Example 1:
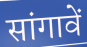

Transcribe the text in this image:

सांगावें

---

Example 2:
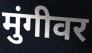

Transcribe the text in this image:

मुंगीवर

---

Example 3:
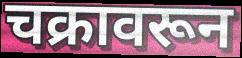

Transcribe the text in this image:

चक्रावरून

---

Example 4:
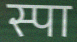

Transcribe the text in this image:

स्पा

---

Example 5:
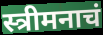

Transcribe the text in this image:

स्त्रीमनाचं